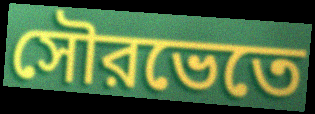
সৌরভেতে